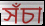
সঁচা